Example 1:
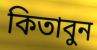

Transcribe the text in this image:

কিতাবুন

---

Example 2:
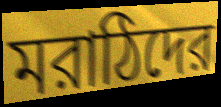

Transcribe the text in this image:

মরাঠিদের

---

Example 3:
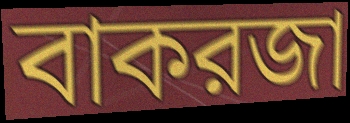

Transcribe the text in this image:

বাকরজা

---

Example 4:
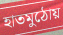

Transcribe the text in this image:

হাতমুঠোয়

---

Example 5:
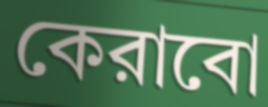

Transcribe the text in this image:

কেরাবো